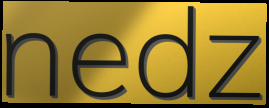
nedz